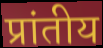
प्रांतीय